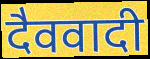
दैववादी